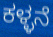
ಕಳ್ಳನೆ